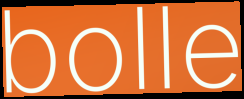
bolle